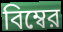
বিম্বের